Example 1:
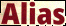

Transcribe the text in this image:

Alias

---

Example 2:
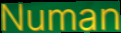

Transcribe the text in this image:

Numan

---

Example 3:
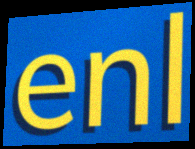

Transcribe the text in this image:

enl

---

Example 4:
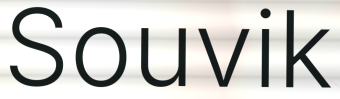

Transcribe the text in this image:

Souvik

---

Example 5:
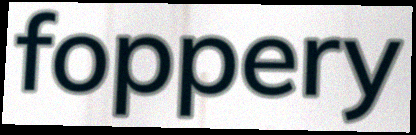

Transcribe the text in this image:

foppery